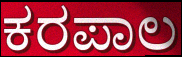
ಕರಪಾಲ